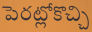
పెరట్లోకొచ్చి